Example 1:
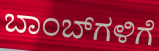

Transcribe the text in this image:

ಬಾಂಬ್‌ಗಳಿಗೆ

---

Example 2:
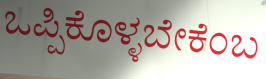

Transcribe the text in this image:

ಒಪ್ಪಿಕೊಳ್ಳಬೇಕೆಂಬ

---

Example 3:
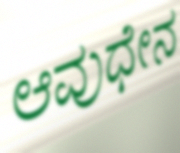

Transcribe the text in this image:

ಆವುಧೇನ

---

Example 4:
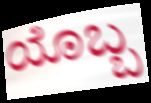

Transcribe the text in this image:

ಯೊಬ್ಬ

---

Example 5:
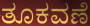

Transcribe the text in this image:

ತೂಕವಣೆ